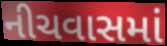
નીચવાસમાં